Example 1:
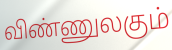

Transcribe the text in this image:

விண்ணுலகும்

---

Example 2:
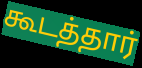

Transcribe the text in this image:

கூடத்தார்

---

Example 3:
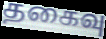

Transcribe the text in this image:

தகைவு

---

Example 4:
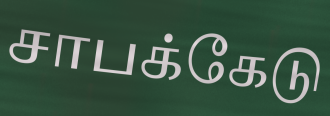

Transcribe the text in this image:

சாபக்கேடு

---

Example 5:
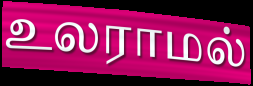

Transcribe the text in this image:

உலராமல்